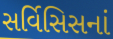
સર્વિસિસનાં